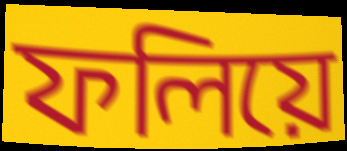
ফলিয়ে